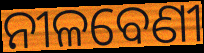
ନୀଳବେଣୀ